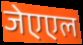
जेएएल